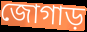
জোগাড়